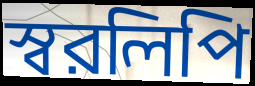
স্বরলিপি